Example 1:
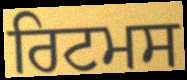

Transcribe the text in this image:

ਰਿਟਮਸ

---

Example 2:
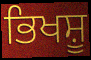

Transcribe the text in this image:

ਭਿਖਸ਼ੂ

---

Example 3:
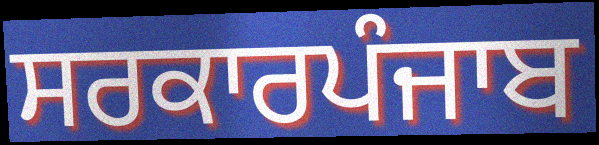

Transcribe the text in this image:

ਸਰਕਾਰਪੰਜਾਬ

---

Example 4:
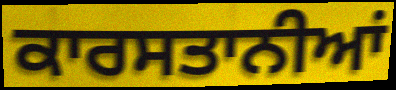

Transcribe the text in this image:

ਕਾਰਸਤਾਨੀਆਂ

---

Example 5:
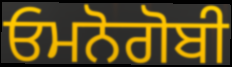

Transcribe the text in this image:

ਓਮਨੋਗੋਬੀ